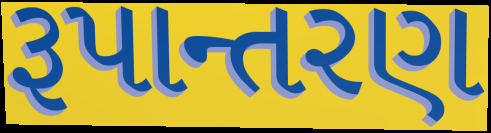
રૂપાન્તરણ